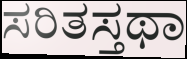
ಸರಿತಸ್ತಥಾ